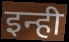
इन्ही